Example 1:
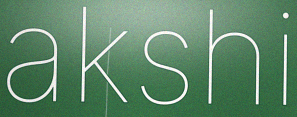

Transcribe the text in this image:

akshi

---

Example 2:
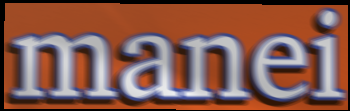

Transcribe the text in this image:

manei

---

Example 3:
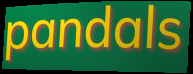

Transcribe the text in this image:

pandals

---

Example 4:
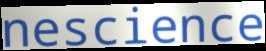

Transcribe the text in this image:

nescience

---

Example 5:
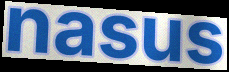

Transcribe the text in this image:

nasus